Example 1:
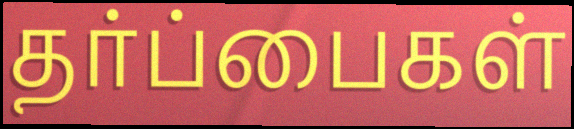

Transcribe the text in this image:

தர்ப்பைகள்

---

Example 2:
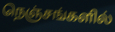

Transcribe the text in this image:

நெஞ்சங்களில்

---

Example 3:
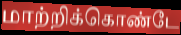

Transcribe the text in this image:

மாற்றிக்கொண்டே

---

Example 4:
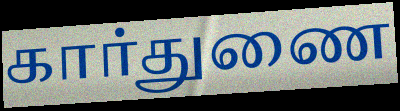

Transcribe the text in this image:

கார்துணை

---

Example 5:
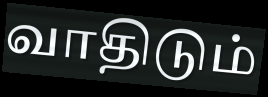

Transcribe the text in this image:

வாதிடும்